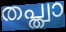
തപ്ത്വാ